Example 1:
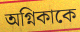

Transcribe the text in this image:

অগ্নিকাকে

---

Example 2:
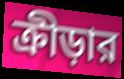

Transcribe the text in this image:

ক্রীড়ার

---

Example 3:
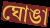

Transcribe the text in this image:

ঘোঙা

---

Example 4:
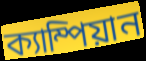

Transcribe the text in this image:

ক্যাম্পিয়ান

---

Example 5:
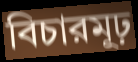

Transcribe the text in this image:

বিচারমূঢ়